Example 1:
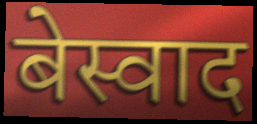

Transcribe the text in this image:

बेस्वाद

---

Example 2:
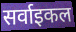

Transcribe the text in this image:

सर्वाइकल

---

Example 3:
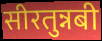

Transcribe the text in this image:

सीरतुन्नबी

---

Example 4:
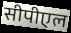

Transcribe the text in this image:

सीपीएल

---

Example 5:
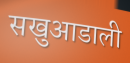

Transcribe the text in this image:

सखुआडाली